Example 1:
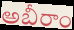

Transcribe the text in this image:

అబీరాం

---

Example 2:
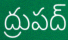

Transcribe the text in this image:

ద్రుపద్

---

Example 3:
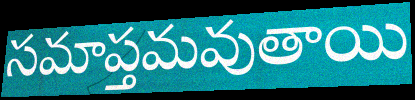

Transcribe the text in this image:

సమాప్తమవుతాయి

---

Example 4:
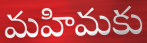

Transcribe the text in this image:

మహిమకు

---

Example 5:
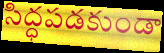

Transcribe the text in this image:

సిద్ధపడకుండా